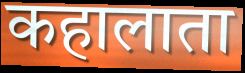
कहालाता